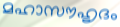
മഹാസൗഹൃദം